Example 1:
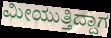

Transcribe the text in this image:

ಮೀಯುತ್ತಿದ್ದಾಗ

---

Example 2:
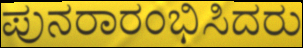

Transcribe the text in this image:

ಪುನರಾರಂಭಿಸಿದರು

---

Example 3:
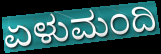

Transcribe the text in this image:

ಏಳುಮಂದಿ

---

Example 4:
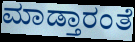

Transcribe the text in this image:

ಮಾಡ್ತಾರಂತೆ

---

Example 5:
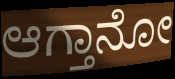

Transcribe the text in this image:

ಆಗ್ತಾನೋ